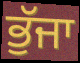
ਭੁੱਜਾ